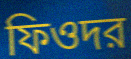
ফিওদর